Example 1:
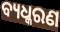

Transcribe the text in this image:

ବ୍ୟଧ୍କରଣ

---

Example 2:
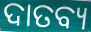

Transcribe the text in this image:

ଦାତବ୍ୟ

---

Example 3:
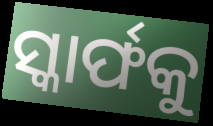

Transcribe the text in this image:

ସ୍କାର୍ଫକୁ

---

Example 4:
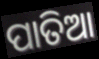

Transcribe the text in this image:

ପାତିଆ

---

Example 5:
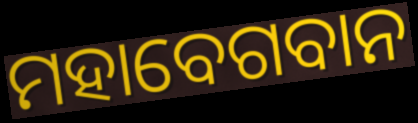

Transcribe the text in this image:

ମହାବେଗବାନ